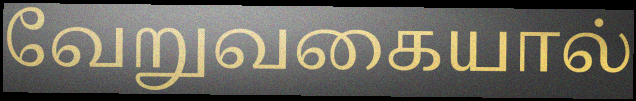
வேறுவகையால்